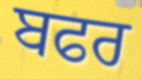
ਬਫਰ